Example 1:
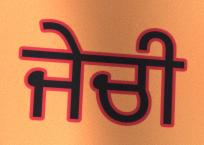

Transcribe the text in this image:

ਜੇਚੀ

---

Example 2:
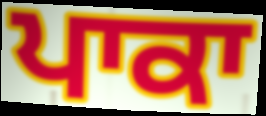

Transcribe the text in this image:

ਪਾਕਾ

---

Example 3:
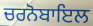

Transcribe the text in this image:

ਚਰਨੋਬਾਇਲ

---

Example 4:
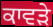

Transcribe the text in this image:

ਕਾਵੜੇ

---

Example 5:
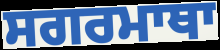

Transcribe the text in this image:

ਸਗਰਮਾਥਾ